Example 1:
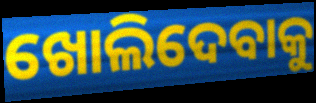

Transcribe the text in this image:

ଖୋଲିଦେବାକୁ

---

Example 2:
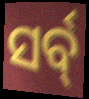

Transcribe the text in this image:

ସର୍ବ୍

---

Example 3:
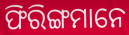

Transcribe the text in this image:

ଫିରିଙ୍ଗମାନେ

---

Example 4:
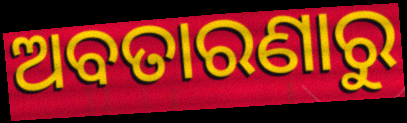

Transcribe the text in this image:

ଅବତାରଣାରୁ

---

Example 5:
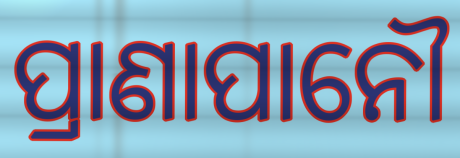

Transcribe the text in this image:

ପ୍ରାଣାପାନୌ